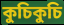
কুচিকুচি